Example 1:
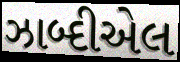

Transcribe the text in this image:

ઝાબ્દીએલ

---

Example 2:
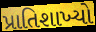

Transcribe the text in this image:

પ્રાતિશાખ્યો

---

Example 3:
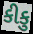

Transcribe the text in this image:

કીકુ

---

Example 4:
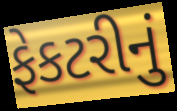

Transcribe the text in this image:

ફેકટરીનું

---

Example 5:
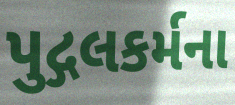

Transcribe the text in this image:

પુદ્ગલકર્મના